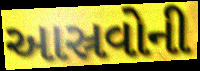
આસ્રવોની